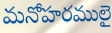
మనోహరములై